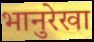
भानुरेखा